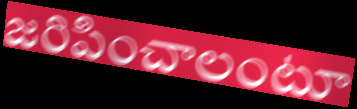
జరిపించాలంటూ